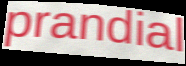
prandial